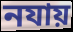
নযায়